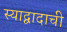
स्याद्वादाची